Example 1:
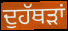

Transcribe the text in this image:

ਦੁਹੱਥੜਾਂ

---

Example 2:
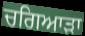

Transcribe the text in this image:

ਚਗਿਆੜਾ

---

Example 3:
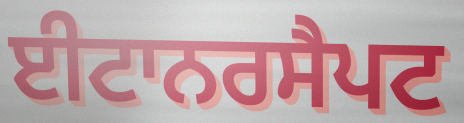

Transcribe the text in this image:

ਈਟਾਨਰਸੈਪਟ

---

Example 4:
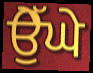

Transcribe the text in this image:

ਉੇੱਘੇ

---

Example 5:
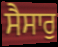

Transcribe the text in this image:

ਸੈਸਾਰੁ